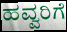
ಹವ್ವರಿಗೆ